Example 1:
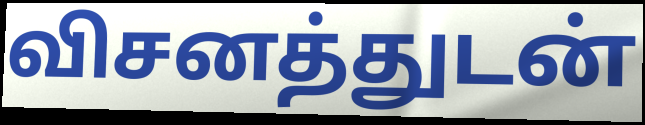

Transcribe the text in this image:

விசனத்துடன்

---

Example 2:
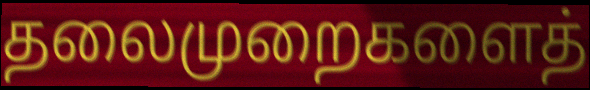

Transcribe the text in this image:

தலைமுறைகளைத்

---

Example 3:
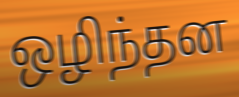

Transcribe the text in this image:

ஒழிந்தன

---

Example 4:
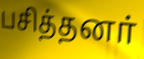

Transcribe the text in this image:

பசித்தனர்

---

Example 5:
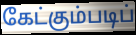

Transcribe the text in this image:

கேட்கும்படிப்